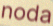
noda